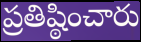
ప్రతిష్ఠించారు